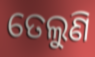
ତେଲୁଣି